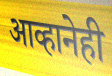
आव्हानेही